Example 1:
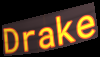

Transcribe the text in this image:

Drake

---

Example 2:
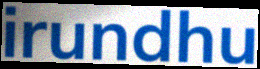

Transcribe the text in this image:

irundhu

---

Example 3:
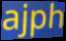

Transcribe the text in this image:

ajph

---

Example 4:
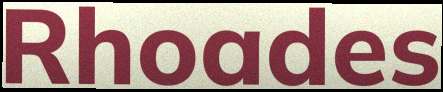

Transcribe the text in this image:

Rhoades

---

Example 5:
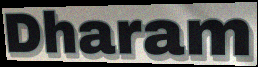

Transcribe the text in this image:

Dharam